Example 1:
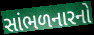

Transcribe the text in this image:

સાંભળનારનો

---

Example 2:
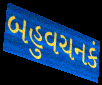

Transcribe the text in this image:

બહુવચનકં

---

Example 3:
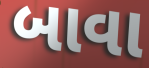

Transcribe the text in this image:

બાવા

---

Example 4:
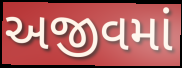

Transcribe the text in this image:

અજીવમાં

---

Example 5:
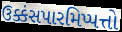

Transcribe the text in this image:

ઉક્કંસપારમિપ્પત્તો